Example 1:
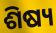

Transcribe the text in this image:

ଶିଷ୍ୟ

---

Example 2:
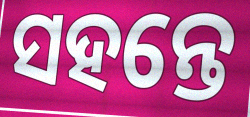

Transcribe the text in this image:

ସହନ୍ତେ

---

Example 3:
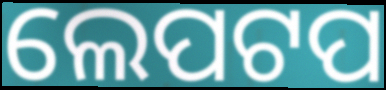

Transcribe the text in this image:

ଲେପଟପ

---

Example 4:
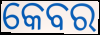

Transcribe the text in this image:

କେବର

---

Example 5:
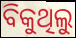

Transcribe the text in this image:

ବିକୁଥିଲୁ